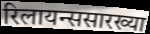
रिलायन्ससारख्या